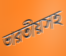
ভারতীয়সহ